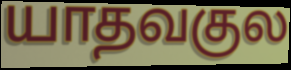
யாதவகுல